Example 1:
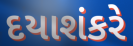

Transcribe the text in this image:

દયાશંકરે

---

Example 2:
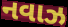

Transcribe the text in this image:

નવાઝ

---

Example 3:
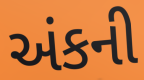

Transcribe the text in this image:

અંકની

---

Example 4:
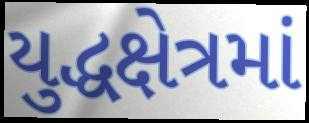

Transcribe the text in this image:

યુદ્ધક્ષેત્રમાં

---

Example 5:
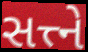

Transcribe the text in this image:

સત્ત્ને